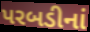
પરબડીનાં